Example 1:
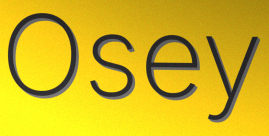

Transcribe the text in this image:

Osey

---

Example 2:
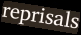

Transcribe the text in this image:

reprisals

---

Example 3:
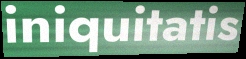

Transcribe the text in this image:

iniquitatis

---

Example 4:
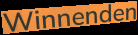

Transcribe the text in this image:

Winnenden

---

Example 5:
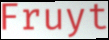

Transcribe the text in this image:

Fruyt